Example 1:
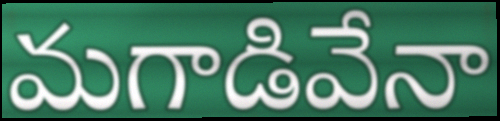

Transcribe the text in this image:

మగాడివేనా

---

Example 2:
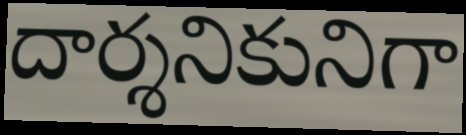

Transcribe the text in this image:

దార్శనికునిగా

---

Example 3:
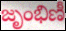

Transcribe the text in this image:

జృంభిణీ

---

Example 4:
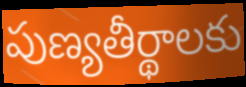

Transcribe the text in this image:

పుణ్యతీర్థాలకు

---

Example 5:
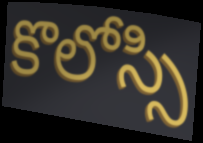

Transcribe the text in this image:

కొలోస్సి